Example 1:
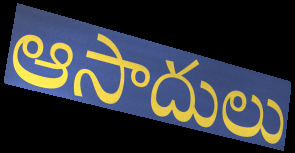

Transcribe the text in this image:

ఆసాదులు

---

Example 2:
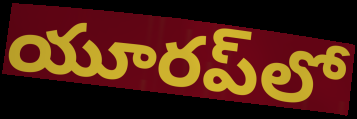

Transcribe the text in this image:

యూరప్‌లో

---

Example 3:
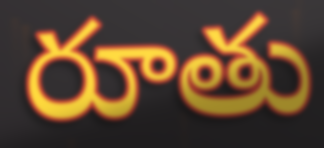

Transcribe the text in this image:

రూతు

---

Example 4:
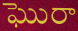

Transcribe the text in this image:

ఘొరా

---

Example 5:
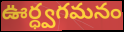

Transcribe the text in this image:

ఊర్ధ్వగమనం